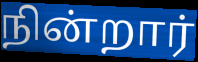
நின்றார்